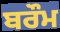
ਬਰੌਮ